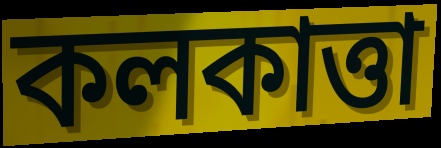
কলকাত্তা